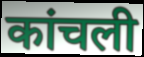
कांचली